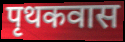
पृथकवास